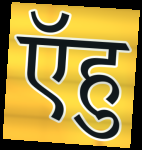
ऍहु